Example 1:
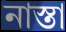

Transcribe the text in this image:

নাস্তা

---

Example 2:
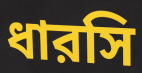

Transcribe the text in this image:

ধারসি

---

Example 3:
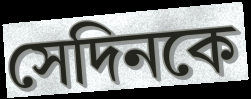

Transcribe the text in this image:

সেদিনকে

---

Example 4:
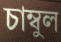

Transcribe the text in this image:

চাম্বুল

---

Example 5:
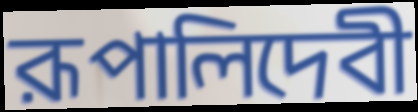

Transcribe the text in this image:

রূপালিদেবী